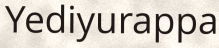
Yediyurappa